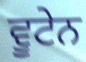
ਵੂਟੇਨ